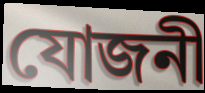
যোজনী